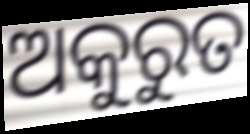
ଅକୁରୁତ